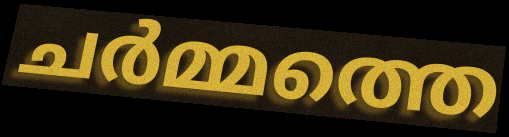
ചർമ്മത്തെ